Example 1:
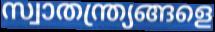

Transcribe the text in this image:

സ്വാതന്ത്ര്യങ്ങളെ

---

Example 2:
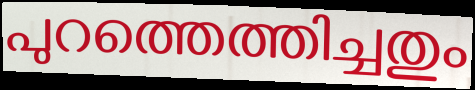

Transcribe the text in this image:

പുറത്തെത്തിച്ചതും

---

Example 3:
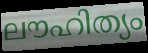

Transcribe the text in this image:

ലൗഹിത്യം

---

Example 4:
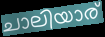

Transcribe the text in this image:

ചാലിയാര്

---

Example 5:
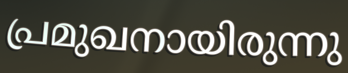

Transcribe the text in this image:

പ്രമുഖനായിരുന്നു